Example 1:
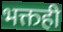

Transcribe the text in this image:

भक्तही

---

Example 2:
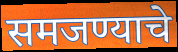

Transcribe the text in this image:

समजण्याचे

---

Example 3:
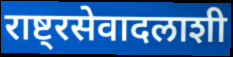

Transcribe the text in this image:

राष्ट्रसेवादलाशी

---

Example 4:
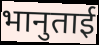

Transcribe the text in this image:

भानुताई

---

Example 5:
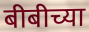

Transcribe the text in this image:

बीबीच्या